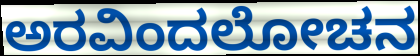
ಅರವಿಂದಲೋಚನ